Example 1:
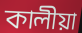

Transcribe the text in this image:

কালীয়া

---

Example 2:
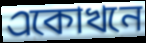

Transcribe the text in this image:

একোখনে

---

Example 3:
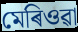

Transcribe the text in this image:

মেৰিওৱা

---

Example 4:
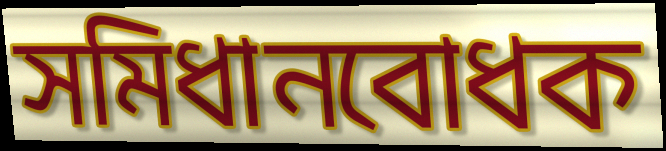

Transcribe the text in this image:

সমিধানবোধক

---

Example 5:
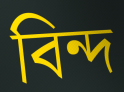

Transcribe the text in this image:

বিন্দ